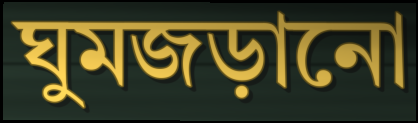
ঘুমজড়ানো